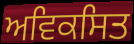
ਅਵਿਕਸਿਤ